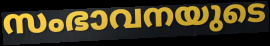
സംഭാവനയുടെ